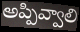
అప్పివ్వాలి